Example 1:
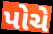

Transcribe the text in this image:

પોચે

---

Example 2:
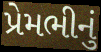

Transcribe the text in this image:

પ્રેમભીનું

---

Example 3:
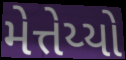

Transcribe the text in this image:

મેત્તેય્યો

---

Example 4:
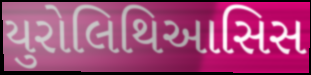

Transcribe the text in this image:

યુરોલિથિઆસિસ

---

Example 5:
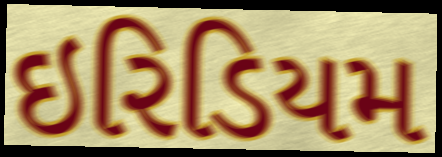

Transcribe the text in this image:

ઇરિડિયમ